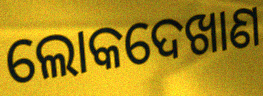
ଲୋକଦେଖାଣ